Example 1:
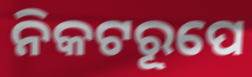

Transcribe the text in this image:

ନିକଟରୂପେ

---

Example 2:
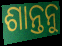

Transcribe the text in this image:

ଶାନ୍ତନୁ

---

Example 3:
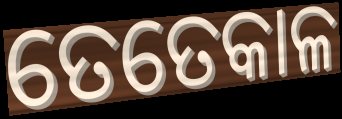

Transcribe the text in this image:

ତେତେକାଳ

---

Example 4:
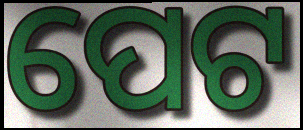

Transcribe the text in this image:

ପେଟ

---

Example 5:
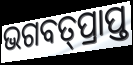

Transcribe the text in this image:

ଭଗବତ୍‌ପ୍ରାପ୍ତ